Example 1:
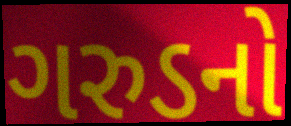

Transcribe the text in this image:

ગરુડનો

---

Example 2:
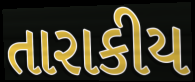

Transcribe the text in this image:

તારાકીય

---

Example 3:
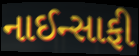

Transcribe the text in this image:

નાઈન્સાફી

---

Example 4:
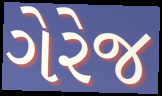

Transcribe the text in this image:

ગેરેજ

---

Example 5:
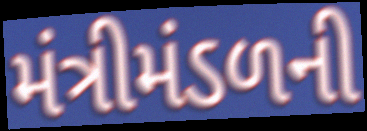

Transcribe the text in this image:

મંત્રીમંડળની